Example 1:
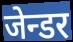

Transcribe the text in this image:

जेन्डर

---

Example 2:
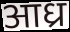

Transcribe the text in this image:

आध्र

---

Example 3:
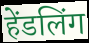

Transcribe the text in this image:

हेंडलिंग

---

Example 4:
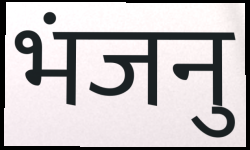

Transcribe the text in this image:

भंजनु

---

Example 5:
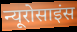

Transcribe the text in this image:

न्यूरोसाइंस